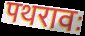
पथरावः